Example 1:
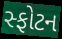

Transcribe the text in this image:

સ્ફોટન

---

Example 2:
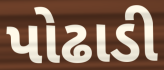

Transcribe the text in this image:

પોઢાડી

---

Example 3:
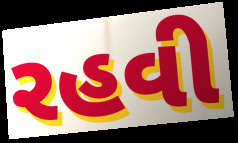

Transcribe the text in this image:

રહવી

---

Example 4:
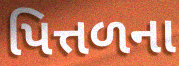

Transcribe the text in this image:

પિત્તળના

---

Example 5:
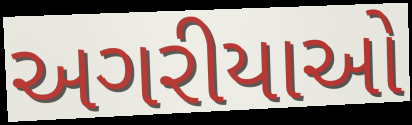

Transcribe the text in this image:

અગરીયાઓ